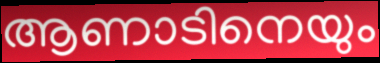
ആണാടിനെയും